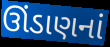
ઊંડાણનાં